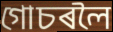
গোচৰলৈ